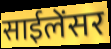
साईलेंसर